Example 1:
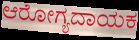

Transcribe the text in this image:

ಆರೋಗ್ಯದಾಯಕ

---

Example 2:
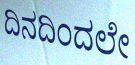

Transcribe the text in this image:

ದಿನದಿಂದಲೇ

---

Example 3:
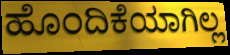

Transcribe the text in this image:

ಹೊಂದಿಕೆಯಾಗಿಲ್ಲ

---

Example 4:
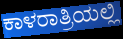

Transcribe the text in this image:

ಕಾಳರಾತ್ರಿಯಲ್ಲಿ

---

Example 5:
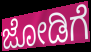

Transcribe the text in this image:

ಜೋಡಿಗೆ